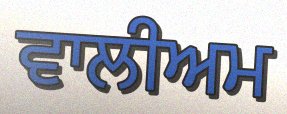
ਵਾਲੀਅਮ